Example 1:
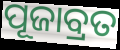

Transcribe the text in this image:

ପୂଜାବ୍ରତ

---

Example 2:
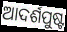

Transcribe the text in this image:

ଆଦର୍ଶପୁଷ୍ଟ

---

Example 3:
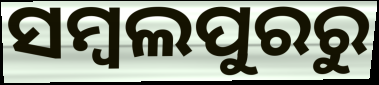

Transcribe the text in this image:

ସମ୍ବଲପୁରରୁ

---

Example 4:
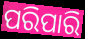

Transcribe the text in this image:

ପରିପାରି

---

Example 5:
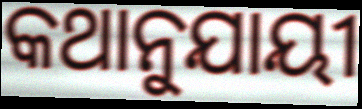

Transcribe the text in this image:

କଥାନୁଯାୟୀ